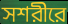
সশরীরে